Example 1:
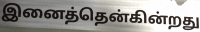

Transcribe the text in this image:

இனைத்தென்கின்றது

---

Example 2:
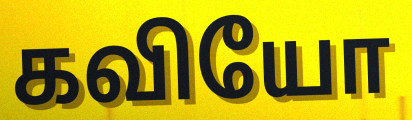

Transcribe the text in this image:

கவியோ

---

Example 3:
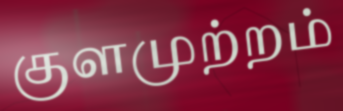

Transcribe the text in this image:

குளமுற்றம்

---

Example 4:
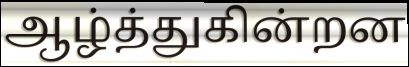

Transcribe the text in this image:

ஆழ்த்துகின்றன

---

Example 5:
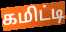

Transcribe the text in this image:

கமிட்டி